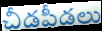
చీడపీడలు